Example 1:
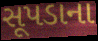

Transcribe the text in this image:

સૂપડાના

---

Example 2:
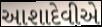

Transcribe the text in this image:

આશાદેવીએ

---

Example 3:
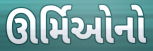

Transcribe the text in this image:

ઊર્મિઓનો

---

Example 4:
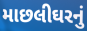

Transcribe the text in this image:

માછલીઘરનું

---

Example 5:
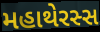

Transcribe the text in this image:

મહાથેરસ્સ